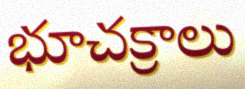
భూచక్రాలు